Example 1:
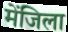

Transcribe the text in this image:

मेंजिला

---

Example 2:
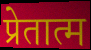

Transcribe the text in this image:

प्रेतात्म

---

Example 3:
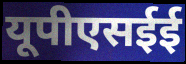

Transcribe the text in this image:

यूपीएसईई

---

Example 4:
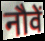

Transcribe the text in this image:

नौवें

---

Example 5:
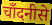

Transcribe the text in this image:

चाँदनीसे